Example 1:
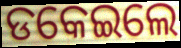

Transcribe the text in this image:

ଡକେଇଲେ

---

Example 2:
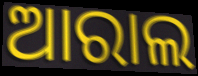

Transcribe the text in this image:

ଆରାଲ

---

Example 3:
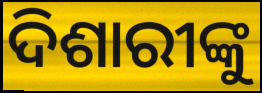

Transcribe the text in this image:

ଦିଶାରୀଙ୍କୁ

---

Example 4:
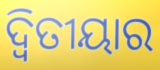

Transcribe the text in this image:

ଦ୍ଵିତୀୟାର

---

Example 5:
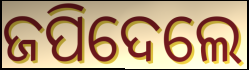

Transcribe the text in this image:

ଜପିଦେଲେ